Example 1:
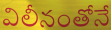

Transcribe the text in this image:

విలీనంతోనే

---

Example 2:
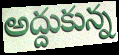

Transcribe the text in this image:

అద్దుకున్న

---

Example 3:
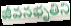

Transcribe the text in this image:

జీవనభృతిని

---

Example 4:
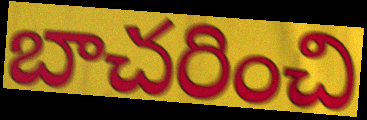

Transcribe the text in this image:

బాచరించి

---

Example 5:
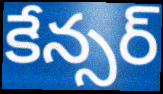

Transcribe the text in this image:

కేన్సర్